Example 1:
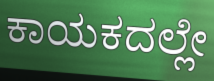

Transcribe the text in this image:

ಕಾಯಕದಲ್ಲೇ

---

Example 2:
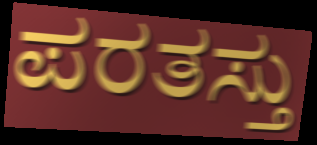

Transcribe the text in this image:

ಪರತಸ್ತು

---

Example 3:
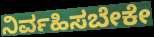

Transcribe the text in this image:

ನಿರ್ವಹಿಸಬೇಕೇ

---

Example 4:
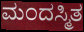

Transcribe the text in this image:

ಮಂದಸ್ಮಿತ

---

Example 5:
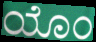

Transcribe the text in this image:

ಯೊಂ